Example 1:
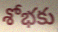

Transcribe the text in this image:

శోభకు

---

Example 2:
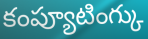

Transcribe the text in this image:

కంప్యూటింగ్కు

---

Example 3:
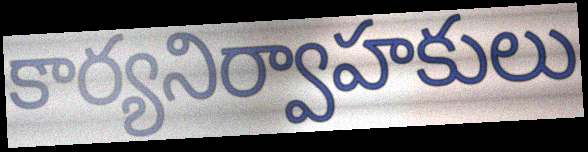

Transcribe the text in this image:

కార్యనిర్వాహకులు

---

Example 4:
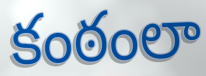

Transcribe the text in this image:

కంఠంలా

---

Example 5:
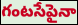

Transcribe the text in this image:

గంటసేపైనా